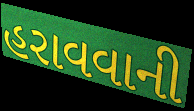
હરાવવાની